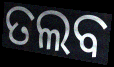
ତଲବ